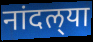
नांदल्या